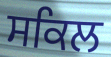
ਸਕਿਲ